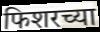
फिशरच्या